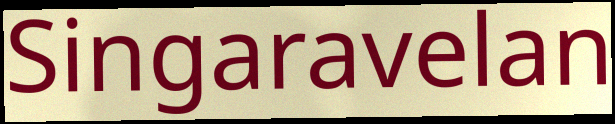
Singaravelan